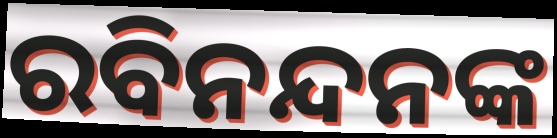
ରବିନନ୍ଦନଙ୍କ